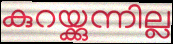
കുറയ്ക്കുന്നില്ല